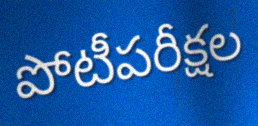
పోటీపరీక్షల